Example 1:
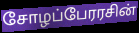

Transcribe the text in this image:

சோழப்பேரரசின்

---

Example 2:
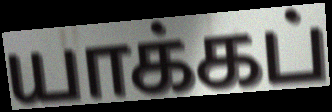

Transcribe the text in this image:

யாக்கப்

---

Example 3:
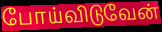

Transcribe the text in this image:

போய்விடுவேன்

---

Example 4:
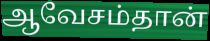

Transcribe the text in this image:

ஆவேசம்தான்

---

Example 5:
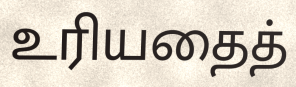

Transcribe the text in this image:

உரியதைத்